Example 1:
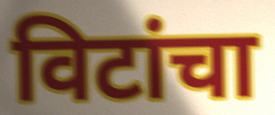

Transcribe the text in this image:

विटांचा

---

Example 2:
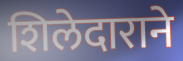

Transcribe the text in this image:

शिलेदाराने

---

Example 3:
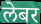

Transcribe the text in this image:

लेबर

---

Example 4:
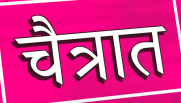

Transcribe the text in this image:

चैत्रात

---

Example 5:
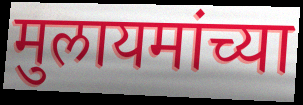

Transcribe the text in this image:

मुलायमांच्या